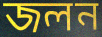
জলন